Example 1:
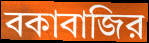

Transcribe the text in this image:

বকাবাজির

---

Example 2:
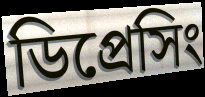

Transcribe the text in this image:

ডিপ্রেসিং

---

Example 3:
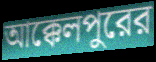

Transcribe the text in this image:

আক্কেলপুরের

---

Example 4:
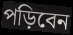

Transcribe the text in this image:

পড়িবেন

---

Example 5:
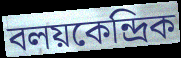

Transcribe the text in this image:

বলয়কেন্দ্রিক